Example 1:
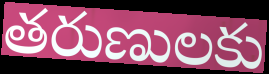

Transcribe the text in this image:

తరుణులకు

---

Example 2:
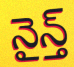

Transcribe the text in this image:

నైన్త్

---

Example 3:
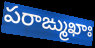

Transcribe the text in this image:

పరాఙ్ముఖాః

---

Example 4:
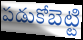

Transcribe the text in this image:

పడుకోబెట్టి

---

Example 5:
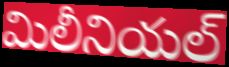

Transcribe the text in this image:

మిలీనియల్